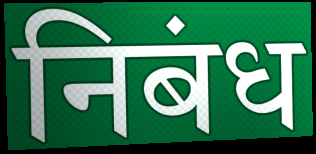
निबंध